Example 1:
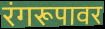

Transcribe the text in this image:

रंगरूपावर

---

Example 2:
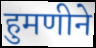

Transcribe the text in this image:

हुमणीने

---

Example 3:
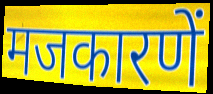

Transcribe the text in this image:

मजकारणें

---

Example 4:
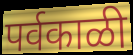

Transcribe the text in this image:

पर्वकाळी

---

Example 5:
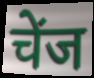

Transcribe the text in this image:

चेंज